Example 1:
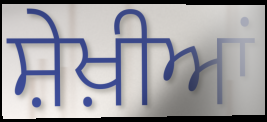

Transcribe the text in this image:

ਸ਼ੇਖ਼ੀਆਂ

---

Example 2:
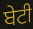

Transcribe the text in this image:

ਬੇਟੀ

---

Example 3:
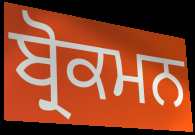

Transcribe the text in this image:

ਬ੍ਰੋਕਮਨ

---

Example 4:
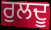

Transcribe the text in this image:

ਰੁਲਦੂ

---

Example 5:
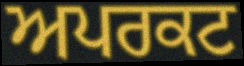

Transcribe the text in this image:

ਅਪਰਕਟ